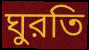
ঘুরতি